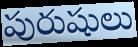
పురుషులు